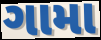
ગામા